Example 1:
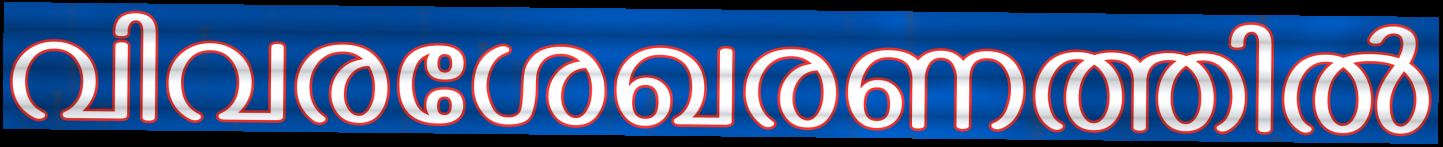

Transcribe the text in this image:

വിവരശേഖരണത്തിൽ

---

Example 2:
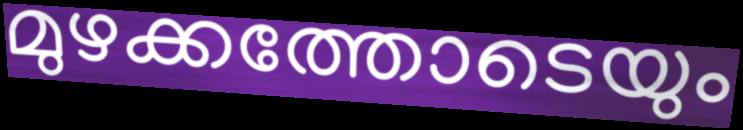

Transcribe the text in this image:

മുഴക്കത്തോടെയും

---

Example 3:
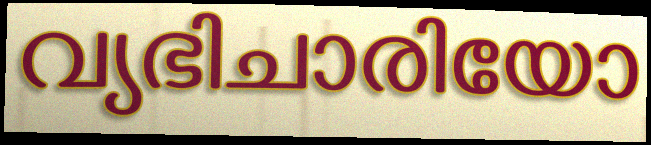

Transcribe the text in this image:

വ്യഭിചാരിയോ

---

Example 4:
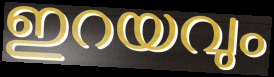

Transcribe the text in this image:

ഇറയവും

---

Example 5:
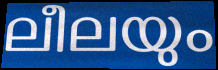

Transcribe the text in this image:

ലീലയും